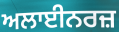
ਅਲਾਈਨਰਜ਼